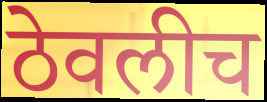
ठेवलीच